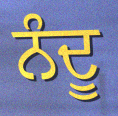
ਨੰਦੂ